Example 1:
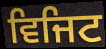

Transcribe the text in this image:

ਵਿਜਿਟ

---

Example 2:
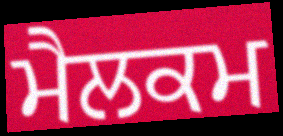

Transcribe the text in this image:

ਮੈਲਕਮ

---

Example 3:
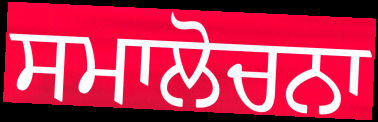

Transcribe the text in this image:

ਸਮਾਲੋਚਨਾ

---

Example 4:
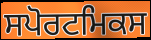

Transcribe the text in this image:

ਸਪੋਰਟਮਿਕਸ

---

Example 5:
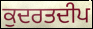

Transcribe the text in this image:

ਕੁਦਰਤਦੀਪ